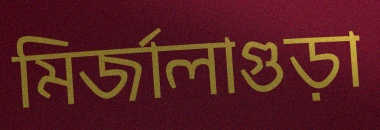
মিৰ্জালাগুড়া